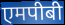
एमपीबी